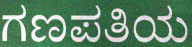
ಗಣಪತಿಯ